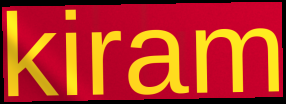
kiram